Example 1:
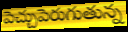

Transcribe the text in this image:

పెచ్చుపెరుగుతున్న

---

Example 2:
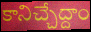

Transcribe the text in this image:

కానిచ్చేద్దాం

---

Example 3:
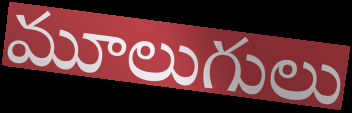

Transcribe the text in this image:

మూలుగులు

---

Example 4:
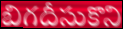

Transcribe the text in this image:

బిగదీసుకొని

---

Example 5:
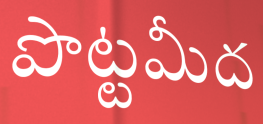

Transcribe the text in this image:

పొట్టమీద